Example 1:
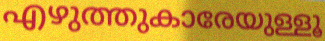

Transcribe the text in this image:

എഴുത്തുകാരേയുള്ളൂ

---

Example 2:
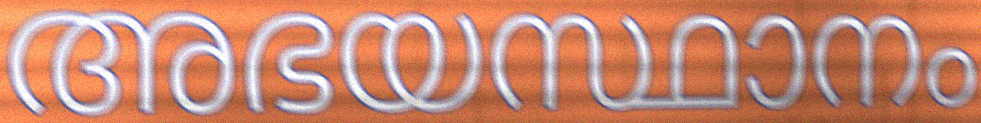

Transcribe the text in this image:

അഭയസ്ഥാനം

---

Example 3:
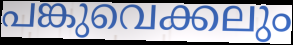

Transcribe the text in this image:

പങ്കുവെക്കലും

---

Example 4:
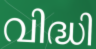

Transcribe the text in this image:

വിദ്ധി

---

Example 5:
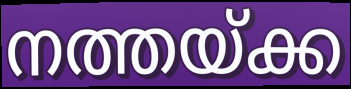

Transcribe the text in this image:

നത്തയ്ക്ക